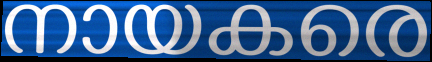
നായകരെ